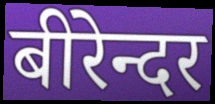
बीरेन्दर